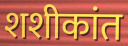
शशीकांत